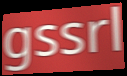
gssrl